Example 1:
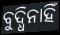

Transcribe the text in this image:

ବୁଦ୍ଧିନାହିଁ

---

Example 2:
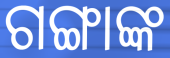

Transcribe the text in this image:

ଗଙ୍ଗାଙ୍କ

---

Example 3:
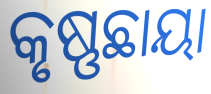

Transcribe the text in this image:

କୃଷ୍ଣଛାୟା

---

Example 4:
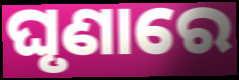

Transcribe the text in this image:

ଘୃଣାରେ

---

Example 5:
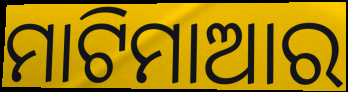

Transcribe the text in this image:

ମାଟିମାଆର